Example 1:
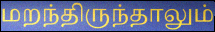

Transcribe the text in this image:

மறந்திருந்தாலும்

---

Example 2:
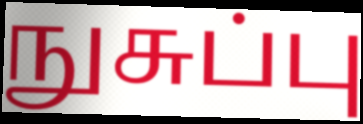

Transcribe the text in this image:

நுசுப்பு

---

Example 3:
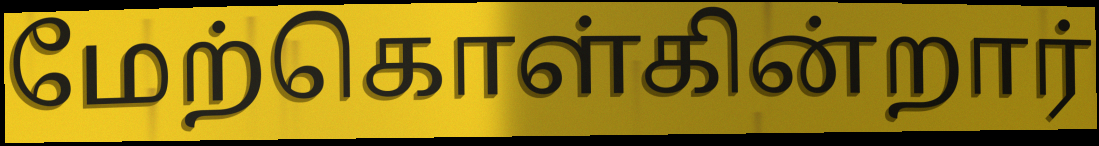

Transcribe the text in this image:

மேற்கொள்கின்றார்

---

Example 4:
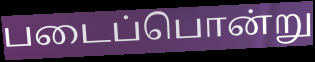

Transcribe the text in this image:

படைப்பொன்று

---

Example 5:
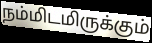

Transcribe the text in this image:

நம்மிடமிருக்கும்